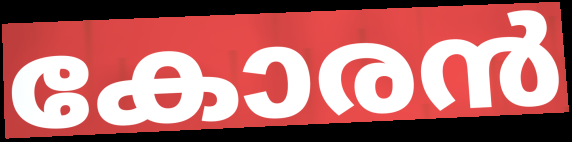
കോരൻ